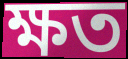
ক্ষত